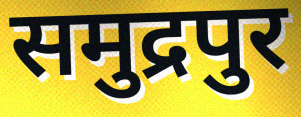
समुद्रपुर